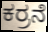
ಕರ್ರನೆ